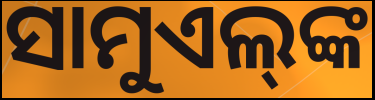
ସାମୁଏଲ୍‌ଙ୍କ